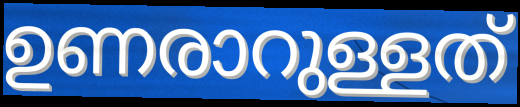
ഉണരാറുള്ളത്